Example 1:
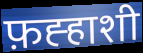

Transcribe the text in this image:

फ़ह्हाशी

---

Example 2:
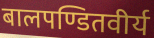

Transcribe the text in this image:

बालपण्डितवीर्य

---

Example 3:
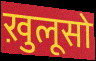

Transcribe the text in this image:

ख़ुलूसो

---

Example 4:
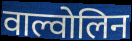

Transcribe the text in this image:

वाल्वोलिन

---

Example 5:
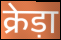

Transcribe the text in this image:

क्रेड़ा